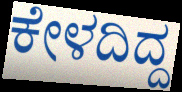
ಕೇಳದಿದ್ದ